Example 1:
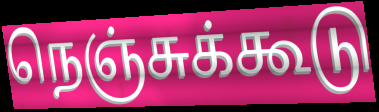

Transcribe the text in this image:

நெஞ்சுக்கூடு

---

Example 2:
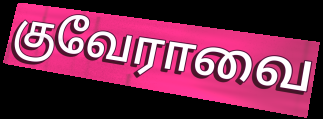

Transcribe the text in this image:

குவேராவை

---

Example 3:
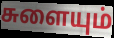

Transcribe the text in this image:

சுளையும்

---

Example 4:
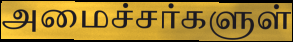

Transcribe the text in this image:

அமைச்சர்களுள்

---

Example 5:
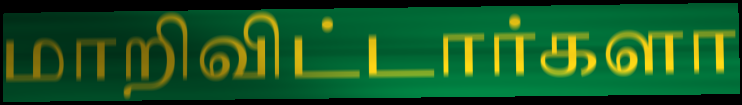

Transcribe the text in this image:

மாறிவிட்டார்களா